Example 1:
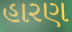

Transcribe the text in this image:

હારણ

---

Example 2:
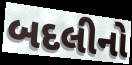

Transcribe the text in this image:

બદલીનો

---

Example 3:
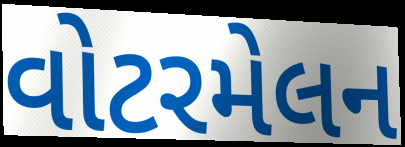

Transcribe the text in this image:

વોટરમેલન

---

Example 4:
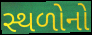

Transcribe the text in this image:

સ્થળોનો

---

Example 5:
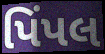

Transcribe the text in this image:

પિંપલ